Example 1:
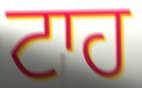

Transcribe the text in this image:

ਟਾਹ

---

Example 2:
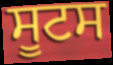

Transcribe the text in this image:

ਸੂਟਸ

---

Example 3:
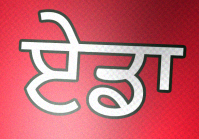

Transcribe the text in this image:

ਏਡਾ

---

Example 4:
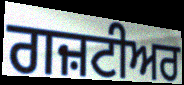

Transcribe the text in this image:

ਗਜ਼ਟੀਅਰ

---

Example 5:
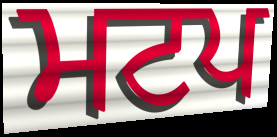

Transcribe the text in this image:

ਮਟਪ